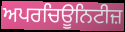
ਅਪਰਚਿਊਨਿਟੀਜ਼